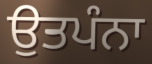
ਉਤਪੰਨਾ